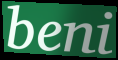
beni